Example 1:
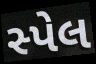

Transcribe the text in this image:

સ્પેલ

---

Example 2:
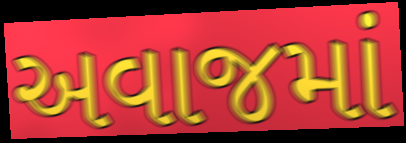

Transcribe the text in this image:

અવાજમાં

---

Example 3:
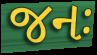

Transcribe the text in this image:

જનઃ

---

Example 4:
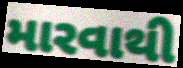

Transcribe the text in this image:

મારવાથી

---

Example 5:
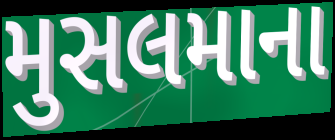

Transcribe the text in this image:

મુસલમાના